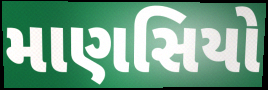
માણસિયો